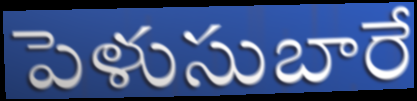
పెళుసుబారే